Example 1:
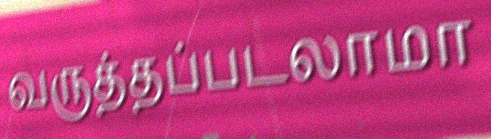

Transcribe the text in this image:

வருத்தப்படலாமா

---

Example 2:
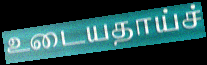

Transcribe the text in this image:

உடையதாய்ச்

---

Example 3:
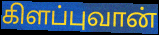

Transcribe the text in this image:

கிளப்புவான்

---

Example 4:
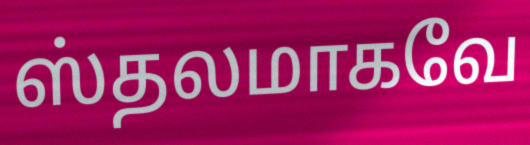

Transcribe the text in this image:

ஸ்தலமாகவே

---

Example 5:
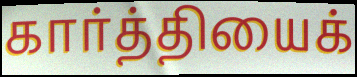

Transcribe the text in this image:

கார்த்தியைக்